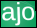
ajo